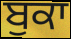
ਬੁਕਾ